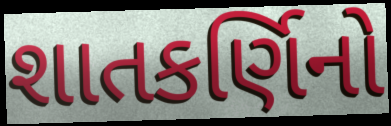
શાતકર્ણિનો